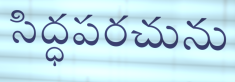
సిద్ధపరచును